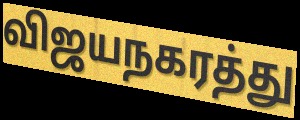
விஜயநகரத்து